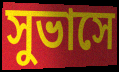
সুভাসে